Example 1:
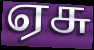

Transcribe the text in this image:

ஏசு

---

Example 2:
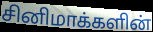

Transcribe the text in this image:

சினிமாக்களின்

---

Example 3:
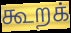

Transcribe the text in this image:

கூறக்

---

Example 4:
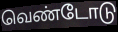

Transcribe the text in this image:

வெண்டோடு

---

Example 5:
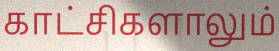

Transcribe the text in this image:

காட்சிகளாலும்